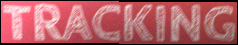
TRACKING